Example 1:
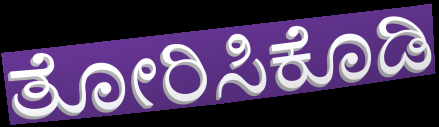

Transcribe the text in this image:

ತೋರಿಸಿಕೊಡಿ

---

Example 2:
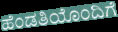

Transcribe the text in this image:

ಹೆಂಡತಿಯೊಂದಿಗೆ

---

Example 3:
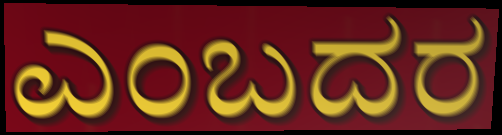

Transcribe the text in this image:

ಎಂಬದರ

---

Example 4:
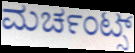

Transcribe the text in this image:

ಮರ್ಚಂಟ್ಸ್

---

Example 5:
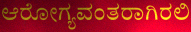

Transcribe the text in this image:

ಆರೋಗ್ಯವಂತರಾಗಿರಲಿ